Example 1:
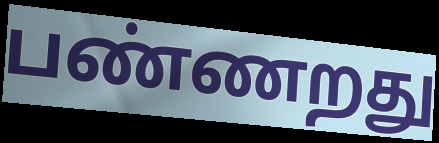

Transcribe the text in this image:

பண்ணறது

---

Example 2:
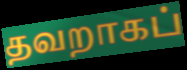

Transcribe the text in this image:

தவறாகப்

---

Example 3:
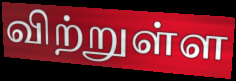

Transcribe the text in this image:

விற்றுள்ள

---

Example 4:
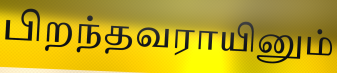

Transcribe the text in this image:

பிறந்தவராயினும்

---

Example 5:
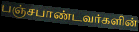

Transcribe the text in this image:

பஞ்சபாண்டவர்களின்